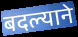
बदल्याने